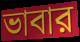
ভাবার